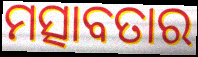
ମତ୍ସାବତାର